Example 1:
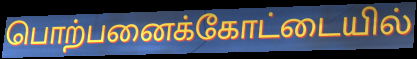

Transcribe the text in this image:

பொற்பனைக்கோட்டையில்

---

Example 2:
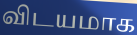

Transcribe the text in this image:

விடயமாக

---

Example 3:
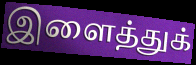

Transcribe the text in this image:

இளைத்துக்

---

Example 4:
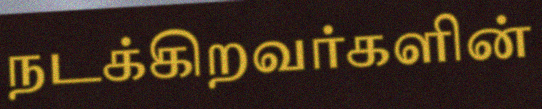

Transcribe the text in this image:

நடக்கிறவர்களின்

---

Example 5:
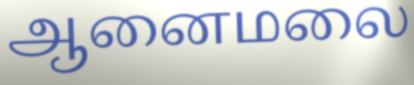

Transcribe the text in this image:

ஆனைமலை